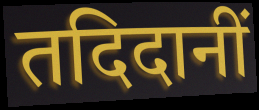
तदिदानीं